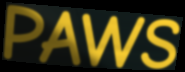
PAWS